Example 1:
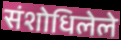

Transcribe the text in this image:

संशोधिलेले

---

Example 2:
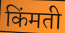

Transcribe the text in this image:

किंमती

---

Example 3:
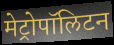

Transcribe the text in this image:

मेट्रोपॉलिटन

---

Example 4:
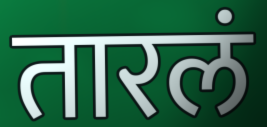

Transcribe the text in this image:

तारलं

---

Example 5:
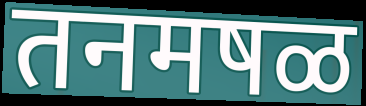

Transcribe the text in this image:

तनमषळ